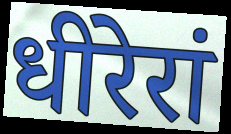
धीरेरां